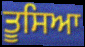
ਤੂਸਿਆ